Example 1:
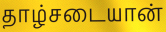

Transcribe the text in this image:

தாழ்சடையான்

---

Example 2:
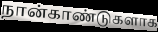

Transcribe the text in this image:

நான்காண்டுகளாக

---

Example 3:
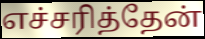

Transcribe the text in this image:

எச்சரித்தேன்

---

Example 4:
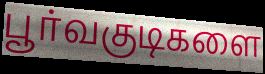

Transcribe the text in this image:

பூர்வகுடிகளை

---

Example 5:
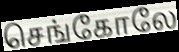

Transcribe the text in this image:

செங்கோலே